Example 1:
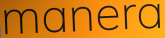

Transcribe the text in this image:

manera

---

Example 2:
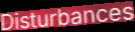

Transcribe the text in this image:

Disturbances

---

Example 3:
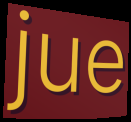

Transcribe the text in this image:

jue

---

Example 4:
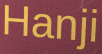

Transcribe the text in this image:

Hanji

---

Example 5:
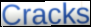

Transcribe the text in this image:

Cracks